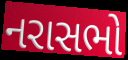
નરાસભો